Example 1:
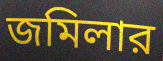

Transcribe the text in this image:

জমিলার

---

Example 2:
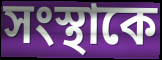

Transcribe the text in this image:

সংস্থাকে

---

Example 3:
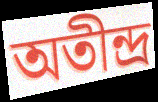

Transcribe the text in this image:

অতীন্দ্র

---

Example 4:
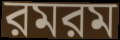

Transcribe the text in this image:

রমরম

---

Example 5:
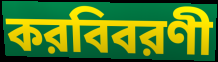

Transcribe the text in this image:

করবিবরণী